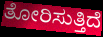
ತೋರಿಸುತ್ತಿದೆ